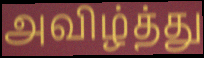
அவிழ்த்து